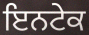
ਇਨਟੇਕ